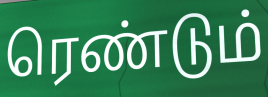
ரெண்டும்